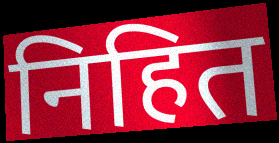
निहित